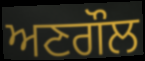
ਅਣਗੌਲ